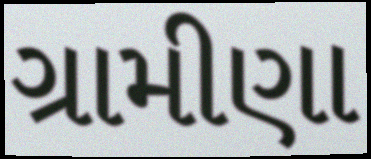
ગ્રામીણા